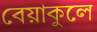
বেয়াকুলে